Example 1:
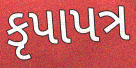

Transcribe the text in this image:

કૃપાપત્ર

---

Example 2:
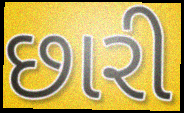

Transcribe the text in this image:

છારી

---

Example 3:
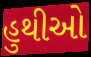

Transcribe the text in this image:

હુથીઓ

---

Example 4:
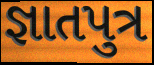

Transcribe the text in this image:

જ્ઞાતપુત્ર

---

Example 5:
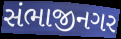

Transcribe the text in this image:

સંભાજીનગર